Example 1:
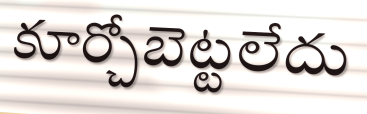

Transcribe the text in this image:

కూర్చోబెట్టలేదు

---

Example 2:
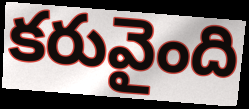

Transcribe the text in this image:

కరువైంది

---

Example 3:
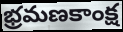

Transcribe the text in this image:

భ్రమణకాంక్ష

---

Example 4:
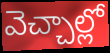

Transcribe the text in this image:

వెచ్చాల్లో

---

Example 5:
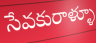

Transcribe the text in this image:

సేవకురాళ్ళూ